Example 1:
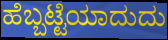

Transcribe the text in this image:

ಹೆಬ್ಬಟ್ಟೆಯಾದುದು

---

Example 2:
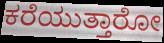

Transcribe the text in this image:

ಕರೆಯುತ್ತಾರೋ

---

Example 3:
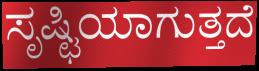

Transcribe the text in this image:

ಸೃಷ್ಟಿಯಾಗುತ್ತದೆ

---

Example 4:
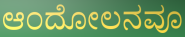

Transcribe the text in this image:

ಆಂದೋಲನವೂ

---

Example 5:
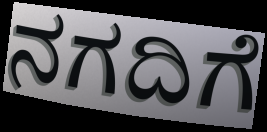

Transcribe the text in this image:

ನಗದಿಗೆ